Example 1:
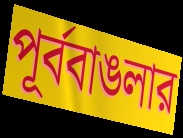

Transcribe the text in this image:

পূর্ববাঙলার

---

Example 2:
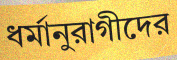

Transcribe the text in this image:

ধর্মানুরাগীদের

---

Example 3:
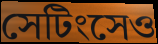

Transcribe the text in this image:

সেটিংসেও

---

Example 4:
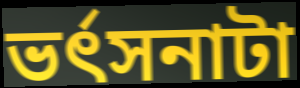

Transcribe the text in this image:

ভর্ৎসনাটা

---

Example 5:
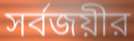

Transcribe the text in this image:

সর্বজয়ীর